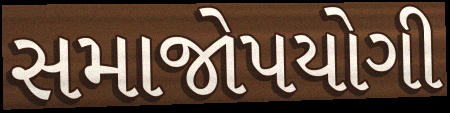
સમાજોપયોગી